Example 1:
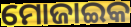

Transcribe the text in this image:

ମୋଜାଇକ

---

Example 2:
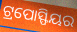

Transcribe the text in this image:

ଟ୍ରପୋସ୍ଫିୟର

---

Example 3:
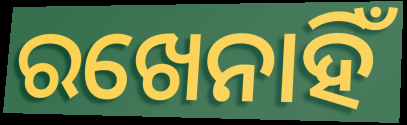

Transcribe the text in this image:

ରଖେନାହିଁ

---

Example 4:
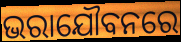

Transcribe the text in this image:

ଭରାଯୌବନରେ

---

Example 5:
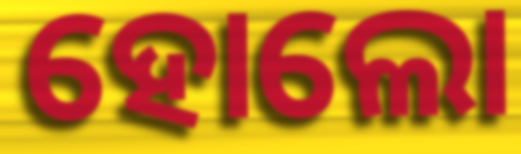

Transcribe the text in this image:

ହୋଲୋ